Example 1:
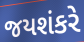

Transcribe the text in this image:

જયશંકરે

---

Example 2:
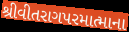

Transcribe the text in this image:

શ્રીવીતરાગપરમાત્માના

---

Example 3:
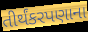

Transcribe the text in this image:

તીર્થંકરપણાના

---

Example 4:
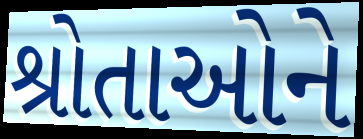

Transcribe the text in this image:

શ્રોતાઓને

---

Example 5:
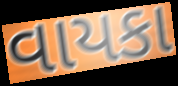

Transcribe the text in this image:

વાયકા